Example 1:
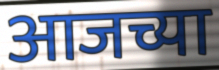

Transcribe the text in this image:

आजच्या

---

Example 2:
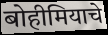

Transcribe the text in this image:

बोहीमियाचे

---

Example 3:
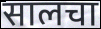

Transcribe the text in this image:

सालचा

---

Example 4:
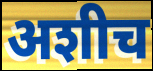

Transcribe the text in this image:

अशीच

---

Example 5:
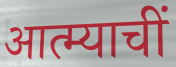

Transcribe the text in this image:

आत्म्याचीं